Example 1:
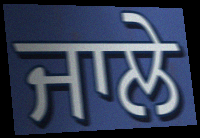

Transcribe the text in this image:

ਜਾਲੇ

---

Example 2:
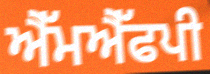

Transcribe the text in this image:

ਐੱਮਐੱਫਪੀ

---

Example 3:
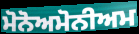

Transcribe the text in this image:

ਮੋਨੋਅਮੋਨੀਅਮ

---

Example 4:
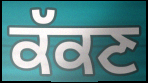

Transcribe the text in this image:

ਕੱਕਣ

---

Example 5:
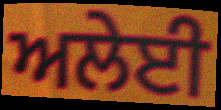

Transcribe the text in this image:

ਅਲੇਈ